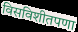
विसविशीतपणा